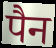
पैन